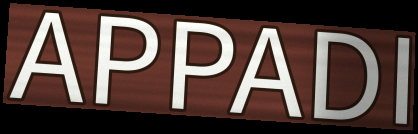
APPADI